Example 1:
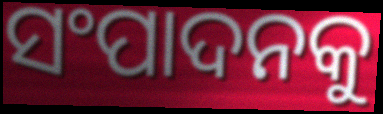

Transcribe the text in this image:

ସଂପାଦନକୁ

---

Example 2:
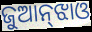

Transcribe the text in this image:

ଜୁଆନ୍‌ଝାଓ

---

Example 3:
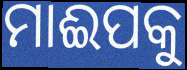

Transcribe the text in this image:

ମାଈପକୁ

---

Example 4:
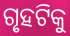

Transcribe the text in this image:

ଗୃହଟିକୁ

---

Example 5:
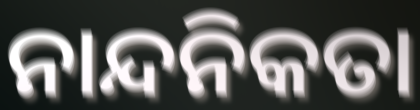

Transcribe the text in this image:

ନାନ୍ଦନିକତା